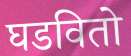
घडवितो